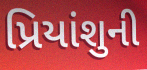
પ્રિયાંશુની